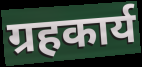
ग्रहकार्य